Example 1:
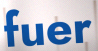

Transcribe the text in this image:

fuer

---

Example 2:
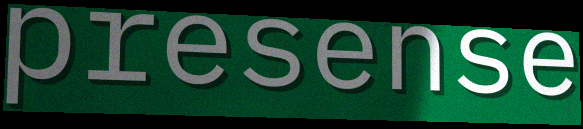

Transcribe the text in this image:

presense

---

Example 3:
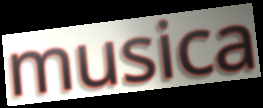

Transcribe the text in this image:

musica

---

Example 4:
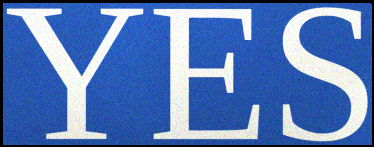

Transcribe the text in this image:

YES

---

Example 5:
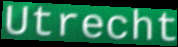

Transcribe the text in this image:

Utrecht